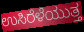
ಉಸಿರೆಳೆಯುತ್ತ